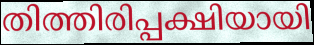
തിത്തിരിപ്പക്ഷിയായി